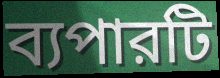
ব্যপারটি